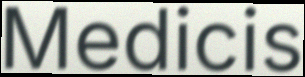
Medicis